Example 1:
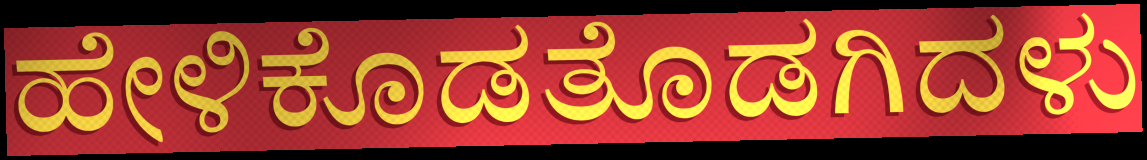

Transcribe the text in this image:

ಹೇಳಿಕೊಡತೊಡಗಿದಳು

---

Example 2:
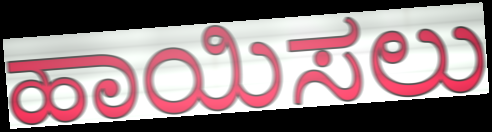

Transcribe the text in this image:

ಹಾಯಿಸಲು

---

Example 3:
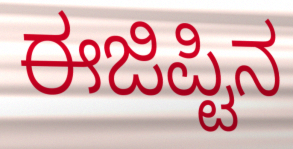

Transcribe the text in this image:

ಈಜಿಪ್ಟಿನ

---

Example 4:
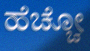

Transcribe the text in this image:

ಹೆಚ್ಚೋ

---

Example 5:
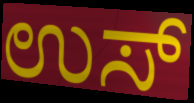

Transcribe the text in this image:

ಉಸ್